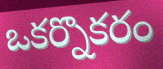
ఒకర్నొకరం